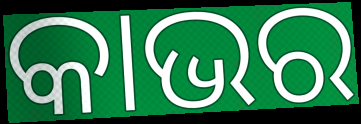
କାଭର